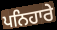
ਪਨਿਹਾਰੇ